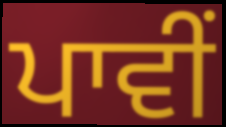
ਪਾਵੀਂ